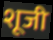
शूजी